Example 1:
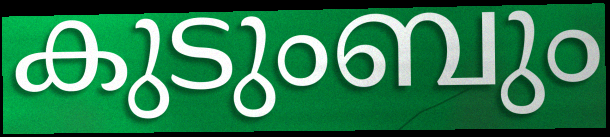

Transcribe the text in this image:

കുടുംബും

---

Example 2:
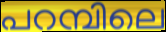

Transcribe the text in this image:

പറമ്പിലെ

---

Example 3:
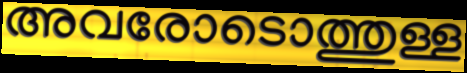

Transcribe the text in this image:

അവരോടൊത്തുള്ള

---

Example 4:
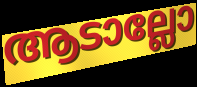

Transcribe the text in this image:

ആടാല്ലോ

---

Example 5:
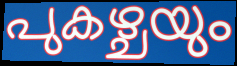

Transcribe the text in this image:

പുകഴ്ചയും